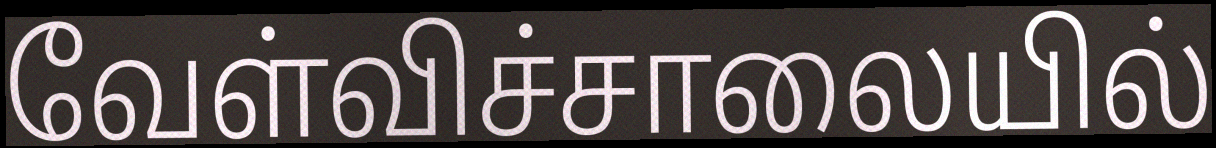
வேள்விச்சாலையில்